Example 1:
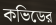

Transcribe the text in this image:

কভিডের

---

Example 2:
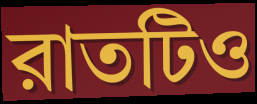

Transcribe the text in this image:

রাতটিও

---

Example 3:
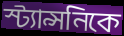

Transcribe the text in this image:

স্ট্যান্সনিকে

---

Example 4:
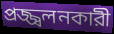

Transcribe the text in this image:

প্রজ্জ্বলনকারী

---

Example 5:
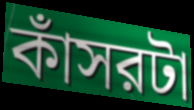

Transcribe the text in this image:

কাঁসরটা